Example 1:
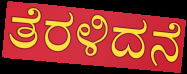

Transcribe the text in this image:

ತೆರಳಿದನೆ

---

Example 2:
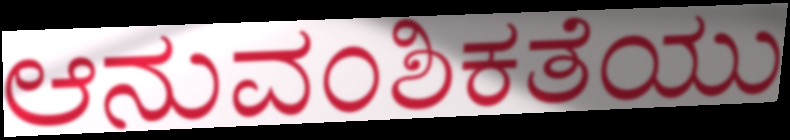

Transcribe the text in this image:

ಆನುವಂಶಿಕತೆಯು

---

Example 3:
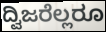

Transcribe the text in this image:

ದ್ವಿಜರೆಲ್ಲರೂ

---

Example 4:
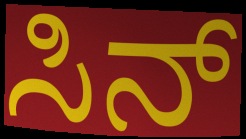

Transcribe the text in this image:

ಸಿನ್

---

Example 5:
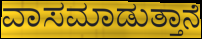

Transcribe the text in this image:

ವಾಸಮಾಡುತ್ತಾನೆ